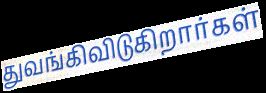
துவங்கிவிடுகிறார்கள்